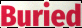
Buried